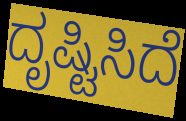
ದೃಷ್ಟಿಸಿದೆ